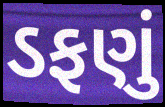
ડફણું